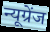
न्यूग्रेंज